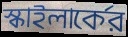
স্কাইলার্কের